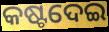
କଷ୍ଟଦେଇ